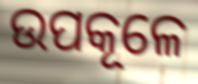
ଉପକୂଳେ